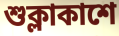
শুক্লাকাশে